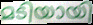
മടിയായി